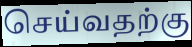
செய்வதற்கு